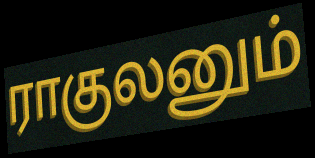
ராகுலனும்